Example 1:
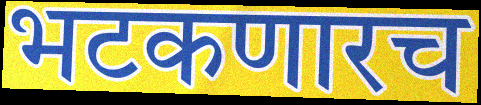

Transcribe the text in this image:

भटकणारच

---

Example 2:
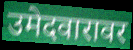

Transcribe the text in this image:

उमेदवारावर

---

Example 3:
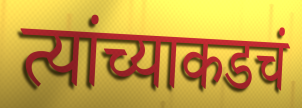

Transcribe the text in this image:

त्यांच्याकडचं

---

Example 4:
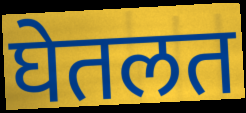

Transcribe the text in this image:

घेतलत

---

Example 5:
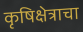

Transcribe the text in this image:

कृषिक्षेत्राचा